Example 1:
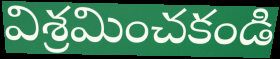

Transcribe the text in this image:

విశ్రమించకండి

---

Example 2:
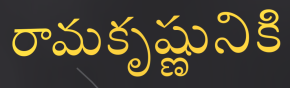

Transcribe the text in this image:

రామకృష్ణునికి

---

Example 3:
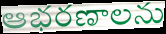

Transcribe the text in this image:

ఆభరణాలను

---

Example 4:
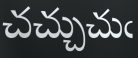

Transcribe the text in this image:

చచ్చుచుఁ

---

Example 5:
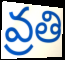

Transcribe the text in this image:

వ్రతి